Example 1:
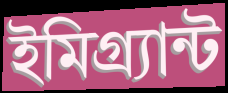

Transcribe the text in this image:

ইমিগ্র্যান্ট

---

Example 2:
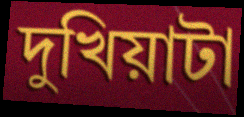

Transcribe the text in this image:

দুখিয়াটা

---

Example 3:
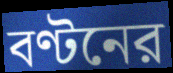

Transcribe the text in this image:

বণ্টনের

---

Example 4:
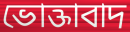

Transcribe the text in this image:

ভোক্তাবাদ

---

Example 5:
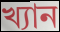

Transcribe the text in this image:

খ্যান